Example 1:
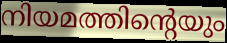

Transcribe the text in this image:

നിയമത്തിന്റെയും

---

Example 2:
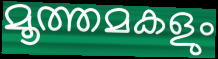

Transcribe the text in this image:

മൂത്തമകളും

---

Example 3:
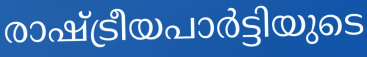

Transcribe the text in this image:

രാഷ്ട്രീയപാർട്ടിയുടെ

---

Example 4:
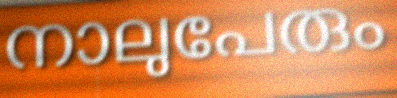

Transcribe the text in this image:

നാലുപേരും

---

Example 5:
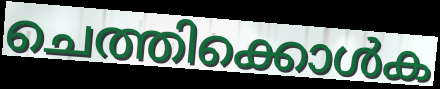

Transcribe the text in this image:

ചെത്തിക്കൊൾക